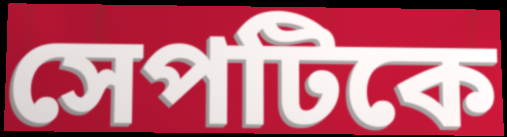
সেপটিকে